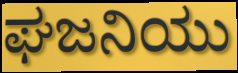
ಘಜನಿಯು